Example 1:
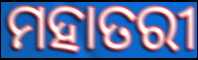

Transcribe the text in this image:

ମହାତରୀ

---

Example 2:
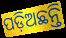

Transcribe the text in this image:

ପଡ଼ିଅଛନ୍ତି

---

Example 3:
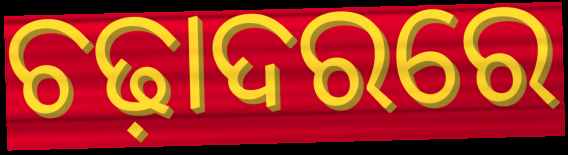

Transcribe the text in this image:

ଚଢ଼ାଦରରେ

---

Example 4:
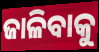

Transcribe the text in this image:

ଜାଳିବାକୁ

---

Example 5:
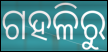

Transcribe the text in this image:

ଗହଳିରୁ